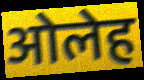
ओलेह